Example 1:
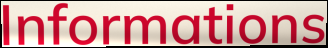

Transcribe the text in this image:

Informations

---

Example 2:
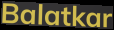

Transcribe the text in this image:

Balatkar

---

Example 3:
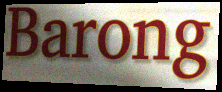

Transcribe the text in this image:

Barong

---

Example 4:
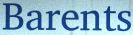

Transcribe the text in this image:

Barents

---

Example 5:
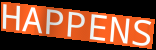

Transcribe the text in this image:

HAPPENS